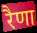
रैणा